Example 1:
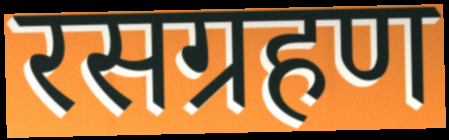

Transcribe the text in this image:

रसग्रहण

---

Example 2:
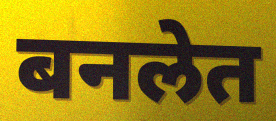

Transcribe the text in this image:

बनलेत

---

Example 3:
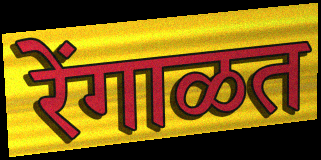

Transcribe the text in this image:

रेंगाळत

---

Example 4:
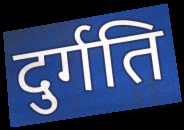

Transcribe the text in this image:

दुर्गति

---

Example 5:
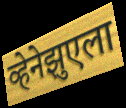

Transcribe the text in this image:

व्हेनेझुएला